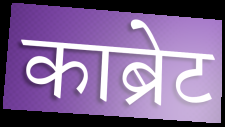
काब्रेट